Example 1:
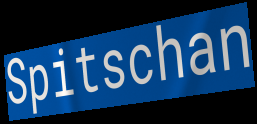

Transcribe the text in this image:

Spitschan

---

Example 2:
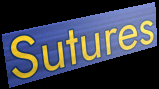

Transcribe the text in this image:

Sutures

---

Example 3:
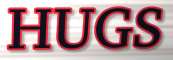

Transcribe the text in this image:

HUGS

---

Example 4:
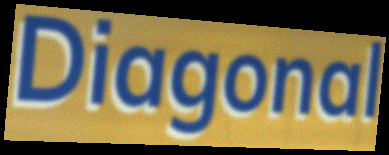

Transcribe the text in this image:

Diagonal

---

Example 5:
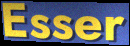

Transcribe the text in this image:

Esser